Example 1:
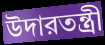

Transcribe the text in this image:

উদারতন্ত্রী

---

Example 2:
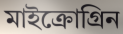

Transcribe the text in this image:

মাইক্রোগ্রিন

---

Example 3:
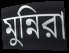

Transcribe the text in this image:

মুন্নিরা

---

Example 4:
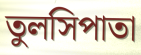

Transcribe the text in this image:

তুলসিপাতা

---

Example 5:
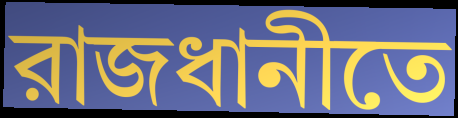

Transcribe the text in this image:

রাজধানীতে